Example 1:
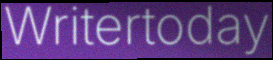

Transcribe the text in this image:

Writertoday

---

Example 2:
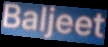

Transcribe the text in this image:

Baljeet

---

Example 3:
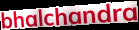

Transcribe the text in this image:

bhalchandra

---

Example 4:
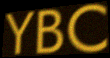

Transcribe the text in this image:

YBC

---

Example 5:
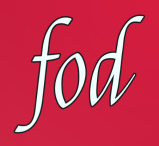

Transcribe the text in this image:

fod